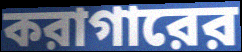
করাগারের